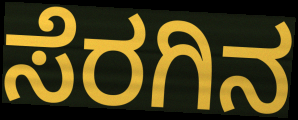
ಸೆರಗಿನ